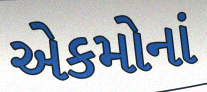
એકમોનાં